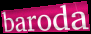
baroda